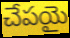
చేపయై